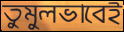
তুমুলভাবেই